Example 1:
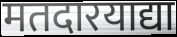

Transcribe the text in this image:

मतदारयाद्या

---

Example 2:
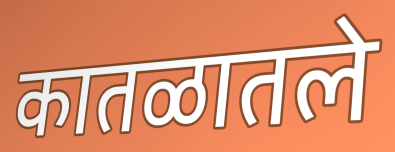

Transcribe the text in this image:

कातळातले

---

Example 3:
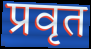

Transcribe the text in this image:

प्रवृत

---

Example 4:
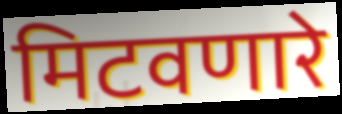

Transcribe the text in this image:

मिटवणारे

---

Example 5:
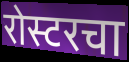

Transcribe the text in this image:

रोस्टरचा